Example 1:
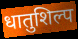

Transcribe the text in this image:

धातुशिल्प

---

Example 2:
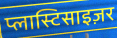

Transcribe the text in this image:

प्लास्टिसाइज़र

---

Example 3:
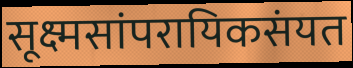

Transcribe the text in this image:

सूक्ष्मसांपरायिकसंयत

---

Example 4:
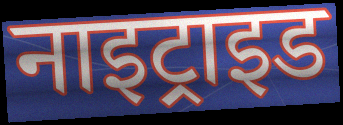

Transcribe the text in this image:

नाइट्राइड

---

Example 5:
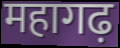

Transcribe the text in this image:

महागढ़